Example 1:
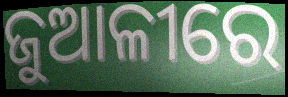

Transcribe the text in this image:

ଜୁଆଳୀରେ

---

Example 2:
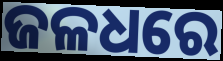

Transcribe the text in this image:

ଜଳଧରେ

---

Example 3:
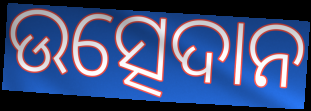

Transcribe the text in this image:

ଉତ୍ସେଦାନ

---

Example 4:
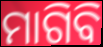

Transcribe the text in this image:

ମାଗିବି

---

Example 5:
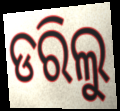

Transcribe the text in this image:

ଡରିଲୁ